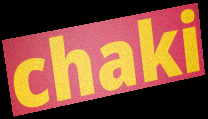
chaki